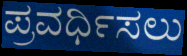
ಪ್ರವರ್ಧಿಸಲು